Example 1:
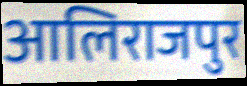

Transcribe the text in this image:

आलिराजपुर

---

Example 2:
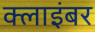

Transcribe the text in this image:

क्लाइंबर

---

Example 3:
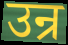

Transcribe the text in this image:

उन्र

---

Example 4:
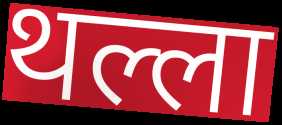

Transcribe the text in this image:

थल्ला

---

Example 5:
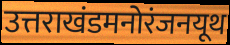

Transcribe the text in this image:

उत्तराखंडमनोरंजनयूथ